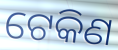
ଟେକିଣ